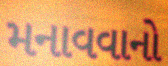
મનાવવાનો